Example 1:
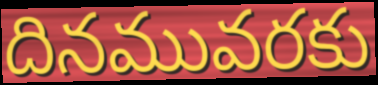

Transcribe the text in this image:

దినమువరకు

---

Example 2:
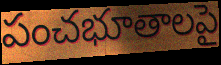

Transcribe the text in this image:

పంచభూతాలపై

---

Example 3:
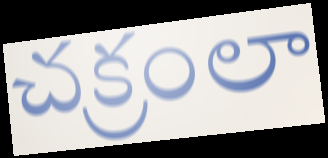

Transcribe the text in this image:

చక్రంలా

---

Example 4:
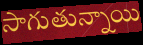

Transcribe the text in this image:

సాగుతున్నాయి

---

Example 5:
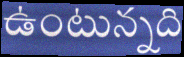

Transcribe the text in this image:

ఉంటున్నది